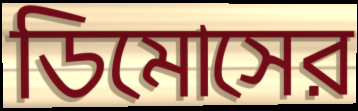
ডিমোসের